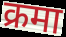
क्रमा